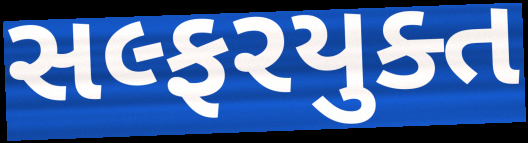
સલ્ફરયુક્ત